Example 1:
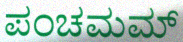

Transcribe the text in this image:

ಪಂಚಮಮ್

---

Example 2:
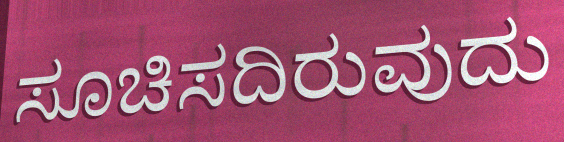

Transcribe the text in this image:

ಸೂಚಿಸದಿರುವುದು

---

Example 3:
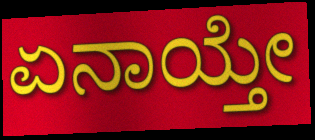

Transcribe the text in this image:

ಏನಾಯ್ತೇ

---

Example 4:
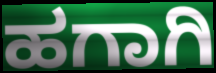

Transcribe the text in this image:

ಹಗಾಗಿ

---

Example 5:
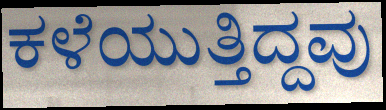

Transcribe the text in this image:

ಕಳೆಯುತ್ತಿದ್ದವು